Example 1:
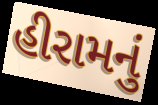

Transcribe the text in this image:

હીરામનું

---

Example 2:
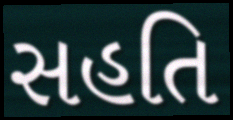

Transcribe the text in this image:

સહતિ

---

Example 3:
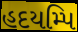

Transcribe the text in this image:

હદયમ્પિ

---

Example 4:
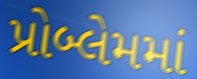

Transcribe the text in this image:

પ્રોબ્લેમમાં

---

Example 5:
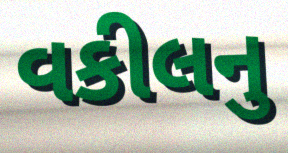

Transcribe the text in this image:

વકીલનુ